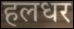
हलधर